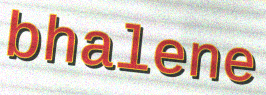
bhalene